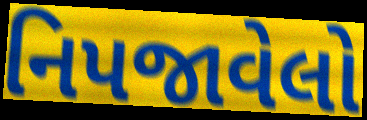
નિપજાવેલો